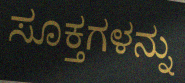
ಸೂಕ್ತಗಳನ್ನು